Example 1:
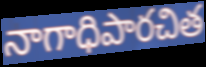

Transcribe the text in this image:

నాగాధిపారచిత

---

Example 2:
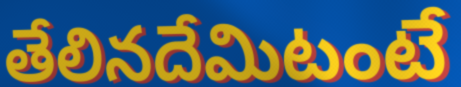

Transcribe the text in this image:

తేలినదేమిటంటే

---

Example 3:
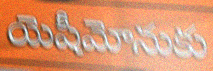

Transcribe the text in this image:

యెషీమోనుకు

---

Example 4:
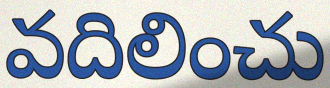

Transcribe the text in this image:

వదిలించు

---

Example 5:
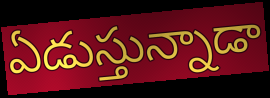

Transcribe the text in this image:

ఏడుస్తున్నాడా